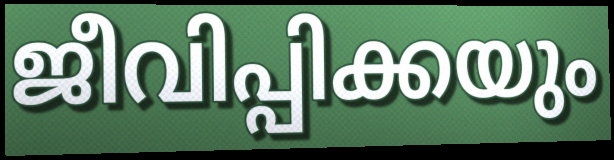
ജീവിപ്പിക്കയും